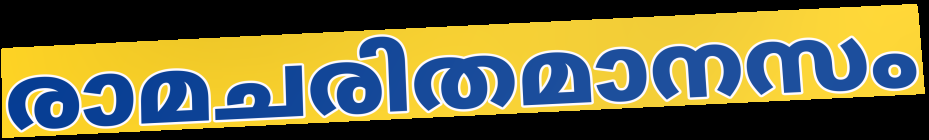
രാമചരിതമാനസം